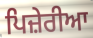
ਪਿਜ਼ੇਰੀਆ